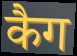
कैग